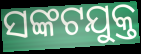
ସଙ୍କଟଯୁକ୍ତ